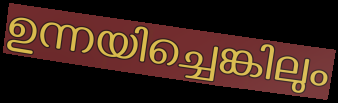
ഉന്നയിച്ചെങ്കിലും